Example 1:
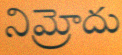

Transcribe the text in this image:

నిమ్రోదు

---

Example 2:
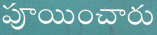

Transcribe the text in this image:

పూయించారు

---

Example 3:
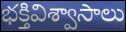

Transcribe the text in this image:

భక్తివిశ్వాసాలు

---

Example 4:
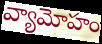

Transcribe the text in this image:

వ్యామోహం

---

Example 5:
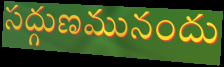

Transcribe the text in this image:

సద్గుణమునందు